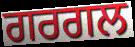
ਗਰਗਲ